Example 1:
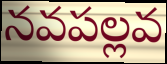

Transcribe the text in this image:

నవపల్లవ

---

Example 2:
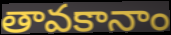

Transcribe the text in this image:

తావకానాం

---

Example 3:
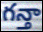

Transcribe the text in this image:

గన్తా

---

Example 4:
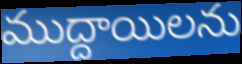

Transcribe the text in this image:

ముద్దాయిలను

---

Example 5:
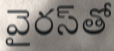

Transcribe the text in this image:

వైరస్‌తో